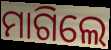
ମାଗିଲେ